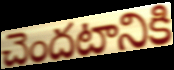
చెందటానికి